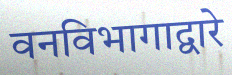
वनविभागाद्वारे